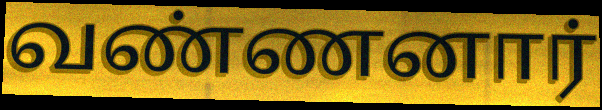
வண்ணனார்